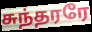
சுந்தரரே